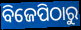
ବିଜେପିଠାରୁ